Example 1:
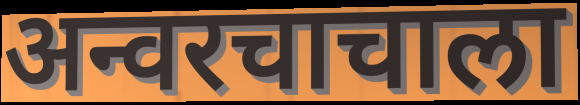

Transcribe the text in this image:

अन्वरचाचाला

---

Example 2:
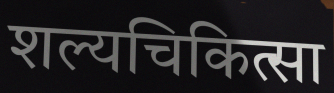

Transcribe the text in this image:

शल्‍यचिकित्‍सा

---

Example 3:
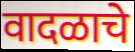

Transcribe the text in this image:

वादळाचे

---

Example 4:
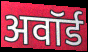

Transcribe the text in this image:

अवॉर्ड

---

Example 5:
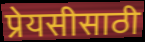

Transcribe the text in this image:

प्रेयसीसाठी